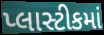
પ્લાસ્ટીકમાં